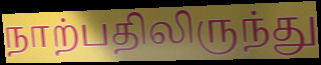
நாற்பதிலிருந்து